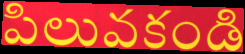
పిలువకండి